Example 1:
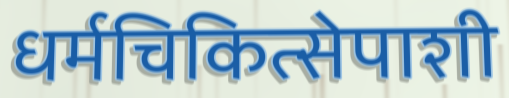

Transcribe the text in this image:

धर्मचिकित्सेपाशी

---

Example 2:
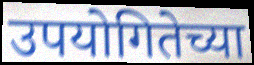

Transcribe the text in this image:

उपयोगितेच्या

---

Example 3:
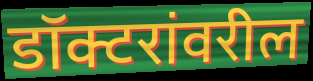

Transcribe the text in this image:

डॉक्टरांवरील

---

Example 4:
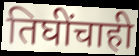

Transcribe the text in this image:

तिघींचाही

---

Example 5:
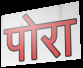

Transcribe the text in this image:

पोरा